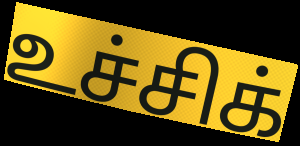
உச்சிக்